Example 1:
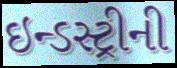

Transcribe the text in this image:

ઇન્ડસ્ટ્રીની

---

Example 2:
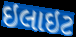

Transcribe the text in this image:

ઇલાઇટ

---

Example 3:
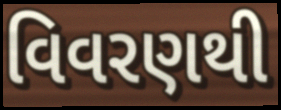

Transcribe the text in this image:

વિવરણથી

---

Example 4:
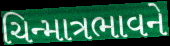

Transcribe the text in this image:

ચિન્માત્રભાવને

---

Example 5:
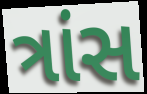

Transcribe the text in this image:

ત્રાંસ